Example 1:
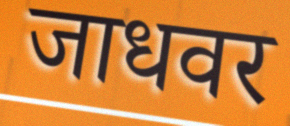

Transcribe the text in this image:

जाधवर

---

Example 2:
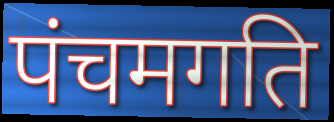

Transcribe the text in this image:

पंचमगति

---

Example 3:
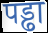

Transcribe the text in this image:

पड्ढा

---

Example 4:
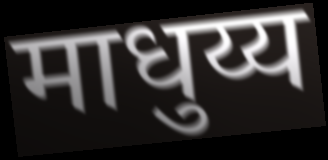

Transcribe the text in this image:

माधुय्य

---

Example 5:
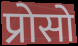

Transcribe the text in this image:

प्रोसो